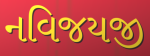
નવિજયજી